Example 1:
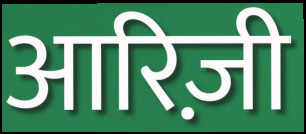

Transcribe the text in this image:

आरिज़ी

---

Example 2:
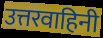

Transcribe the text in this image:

उत्तरवाहिनी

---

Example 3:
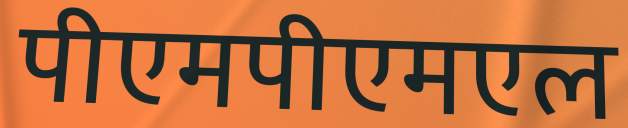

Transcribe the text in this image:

पीएमपीएमएल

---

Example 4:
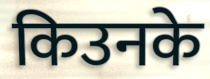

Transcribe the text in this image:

किउनके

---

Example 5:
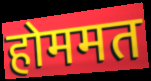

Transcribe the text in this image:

होममत